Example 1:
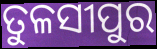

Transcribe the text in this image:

ତୁଳସୀପୁର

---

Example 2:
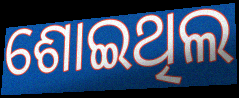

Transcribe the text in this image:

ଶୋଇଥିଲ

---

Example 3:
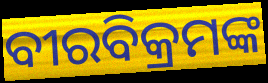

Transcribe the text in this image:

ବୀରବିକ୍ରମଙ୍କ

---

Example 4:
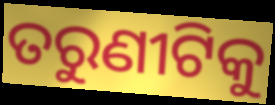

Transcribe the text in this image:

ତରୁଣୀଟିକୁ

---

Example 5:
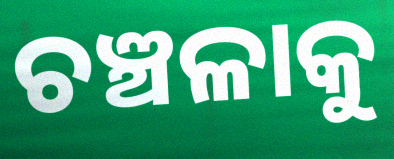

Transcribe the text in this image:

ଚଞ୍ଚଳାକୁ